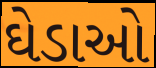
ઘેડાઓ